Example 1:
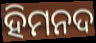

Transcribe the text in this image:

ହିମନଦ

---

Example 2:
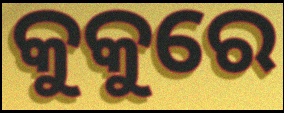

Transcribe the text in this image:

କୁକୁରେ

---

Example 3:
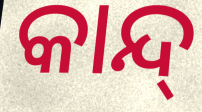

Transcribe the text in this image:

କାନ୍ଦ୍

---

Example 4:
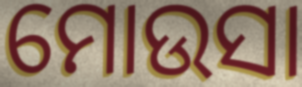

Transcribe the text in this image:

ମୋଉସା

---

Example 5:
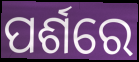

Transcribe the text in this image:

ପର୍ଶରେ